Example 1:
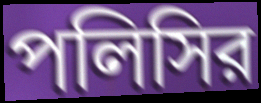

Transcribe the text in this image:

পলিসির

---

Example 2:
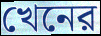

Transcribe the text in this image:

খেনের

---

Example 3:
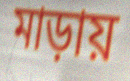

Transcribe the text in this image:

মাড়ায়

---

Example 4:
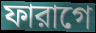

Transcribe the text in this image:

ফারাগে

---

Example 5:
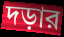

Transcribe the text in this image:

দড়ার